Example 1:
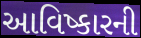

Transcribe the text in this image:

આવિષ્કારની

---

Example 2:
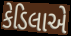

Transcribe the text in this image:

કેડિલાએ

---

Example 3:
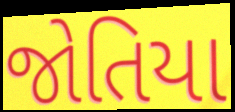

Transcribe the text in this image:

જોતિયા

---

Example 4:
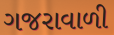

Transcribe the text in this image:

ગજરાવાળી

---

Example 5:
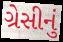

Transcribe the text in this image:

ગ્રેસીનું